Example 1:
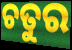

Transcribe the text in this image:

ଚତୁର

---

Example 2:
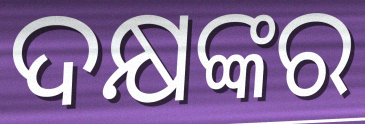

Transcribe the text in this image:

ଦକ୍ଷଙ୍କର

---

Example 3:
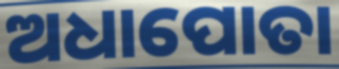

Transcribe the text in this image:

ଅଧାପୋତା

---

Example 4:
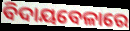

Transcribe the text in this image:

ବିଦାୟବେଳାରେ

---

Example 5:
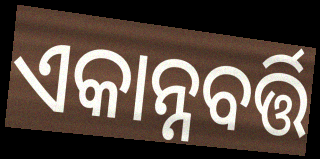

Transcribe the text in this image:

ଏକାନ୍ନବର୍ତ୍ତି